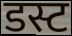
डस्ट